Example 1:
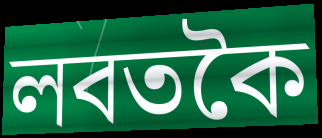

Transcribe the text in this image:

লবতকৈ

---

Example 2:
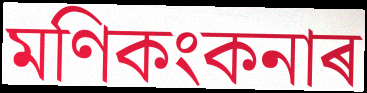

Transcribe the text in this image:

মণিকংকনাৰ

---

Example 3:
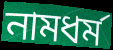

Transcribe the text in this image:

নামধৰ্ম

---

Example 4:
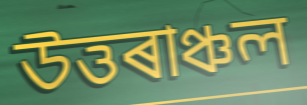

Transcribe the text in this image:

উত্তৰাঞ্চল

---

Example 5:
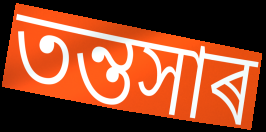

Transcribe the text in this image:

তন্তসাৰ